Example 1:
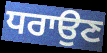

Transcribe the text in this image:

ਧਰਾਉਣ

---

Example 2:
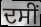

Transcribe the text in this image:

ਦਸੀਂ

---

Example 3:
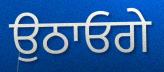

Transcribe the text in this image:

ਉਠਾਓਗੇ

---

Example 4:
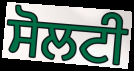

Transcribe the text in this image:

ਸੋਲਟੀ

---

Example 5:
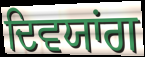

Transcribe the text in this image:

ਦਿਵਯਾਂਗ